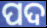
ପଦ